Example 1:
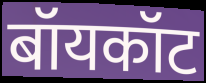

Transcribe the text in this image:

बॉयकॉट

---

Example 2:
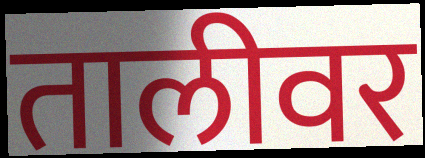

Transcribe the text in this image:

तालीवर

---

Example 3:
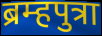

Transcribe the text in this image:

ब्रम्हपुत्रा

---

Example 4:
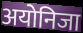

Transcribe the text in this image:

अयोनिजा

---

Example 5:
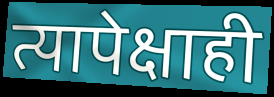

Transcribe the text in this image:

त्यापेक्षाही